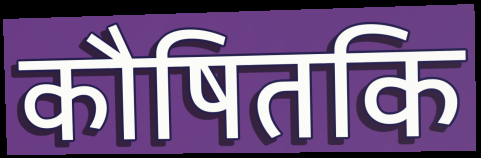
कौषितकि